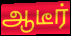
ஆடீர்